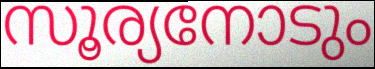
സൂര്യനോടും